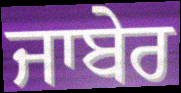
ਜਾਬੇਰ